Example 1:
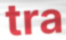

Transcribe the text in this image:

tra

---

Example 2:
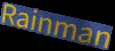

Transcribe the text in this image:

Rainman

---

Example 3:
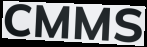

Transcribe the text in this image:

CMMS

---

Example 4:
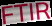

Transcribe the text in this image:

FTIR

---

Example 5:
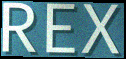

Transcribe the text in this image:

REX